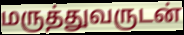
மருத்துவருடன்